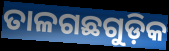
ତାଳଗଛଗୁଡ଼ିକ